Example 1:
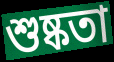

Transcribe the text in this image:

শুষ্কতা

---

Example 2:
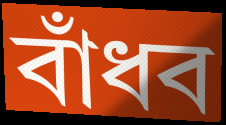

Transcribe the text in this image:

বাঁধব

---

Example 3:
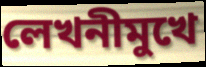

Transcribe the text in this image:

লেখনীমুখে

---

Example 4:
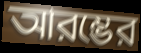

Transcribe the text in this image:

আরম্ভের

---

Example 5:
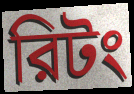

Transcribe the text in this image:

রিটং